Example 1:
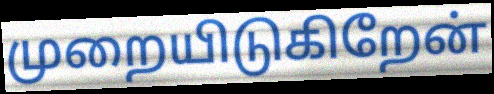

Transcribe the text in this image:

முறையிடுகிறேன்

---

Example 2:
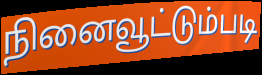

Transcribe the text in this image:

நினைவூட்டும்படி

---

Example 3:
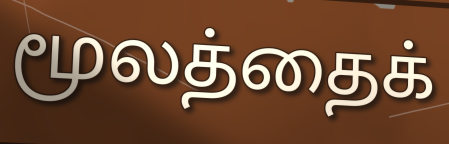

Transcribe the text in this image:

மூலத்தைக்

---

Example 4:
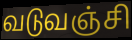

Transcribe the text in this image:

வடுவஞ்சி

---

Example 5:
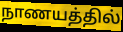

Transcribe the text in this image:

நாணயத்தில்